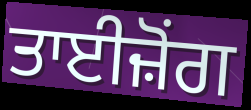
ਤਾਈਜ਼ੋਂਗ